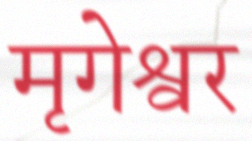
मृगेश्वर